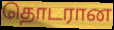
தொடரான